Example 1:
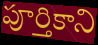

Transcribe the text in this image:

పూర్తికాని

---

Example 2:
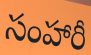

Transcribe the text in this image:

సంహారీ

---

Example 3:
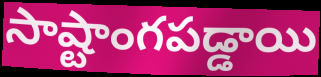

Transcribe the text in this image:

సాష్టాంగపడ్డాయి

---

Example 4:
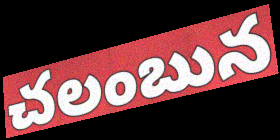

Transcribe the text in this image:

చలంబున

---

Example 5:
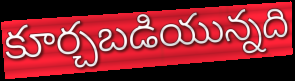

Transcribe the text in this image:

కూర్చబడియున్నది